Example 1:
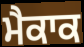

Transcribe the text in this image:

ਮੈਕਾਕ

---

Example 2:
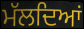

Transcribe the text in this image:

ਮੱਲਦਿਆਂ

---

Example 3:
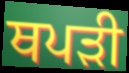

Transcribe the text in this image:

ਥਪੜੀ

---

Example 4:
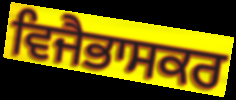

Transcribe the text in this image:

ਵਿਜੈਭਾਸਕਰ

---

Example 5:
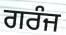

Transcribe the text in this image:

ਗਰੰਜ